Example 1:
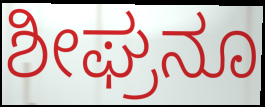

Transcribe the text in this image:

ಶೀಘ್ರನೂ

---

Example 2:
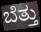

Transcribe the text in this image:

ಬೆತ್ತು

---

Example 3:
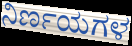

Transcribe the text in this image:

ನಿರ್ಣಯಗಳ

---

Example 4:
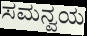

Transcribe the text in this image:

ಸಮನ್ವಯ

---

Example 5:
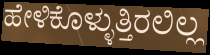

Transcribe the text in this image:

ಹೇಳಿಕೊಳ್ಳುತ್ತಿರಲಿಲ್ಲ